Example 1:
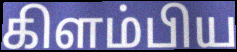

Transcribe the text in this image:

கிளம்பிய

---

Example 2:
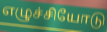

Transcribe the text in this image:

எழுச்சியோடு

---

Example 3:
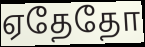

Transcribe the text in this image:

ஏதேதோ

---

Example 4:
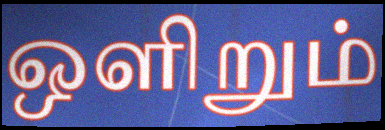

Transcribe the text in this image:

ஒளிறும்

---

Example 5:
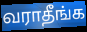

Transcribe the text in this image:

வராதீங்க